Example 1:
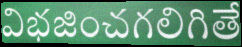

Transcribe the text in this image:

విభజించగలిగితే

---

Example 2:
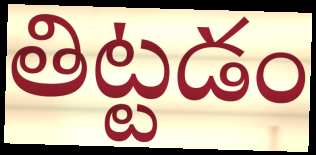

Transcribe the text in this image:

తిట్టడం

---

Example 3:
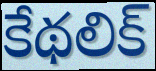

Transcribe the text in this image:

కేథలిక్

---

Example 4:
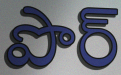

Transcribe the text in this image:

పొర్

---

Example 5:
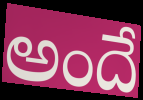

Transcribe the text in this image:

అందే